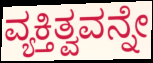
ವ್ಯಕ್ತಿತ್ವವನ್ನೇ